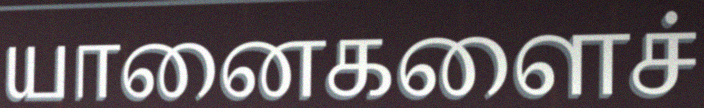
யானைகளைச்